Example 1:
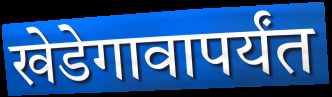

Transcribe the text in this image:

खेडेगावापर्यंत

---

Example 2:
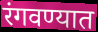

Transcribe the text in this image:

रंगवण्यात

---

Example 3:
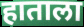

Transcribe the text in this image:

हाताला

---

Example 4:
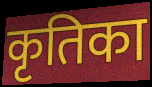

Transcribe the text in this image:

कृतिका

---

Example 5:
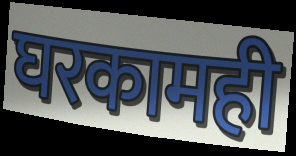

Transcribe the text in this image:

घरकामही